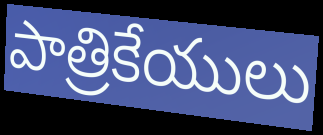
పాత్రికేయులు